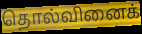
தொல்வினைக்